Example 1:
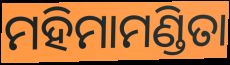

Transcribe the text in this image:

ମହିମାମଣ୍ଡିତା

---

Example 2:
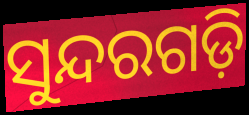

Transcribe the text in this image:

ସୁନ୍ଦରଗଡ଼ି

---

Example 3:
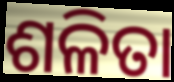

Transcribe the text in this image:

ଶଳିତା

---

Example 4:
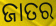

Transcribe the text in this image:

ଜାତର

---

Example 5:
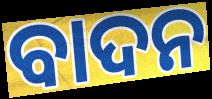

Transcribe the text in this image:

ବାଦନ